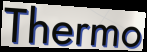
Thermo